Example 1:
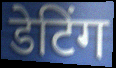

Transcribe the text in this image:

डेटिंग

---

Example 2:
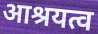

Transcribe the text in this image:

आश्रयत्व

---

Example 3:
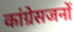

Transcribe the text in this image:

कांग्रेसजनों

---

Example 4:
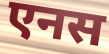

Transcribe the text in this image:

एनस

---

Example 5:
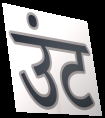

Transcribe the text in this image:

उंट